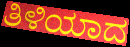
ತಿಳಿಯಾದ